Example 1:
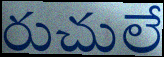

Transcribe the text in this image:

రుచులే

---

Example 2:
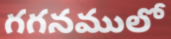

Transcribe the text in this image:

గగనములో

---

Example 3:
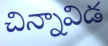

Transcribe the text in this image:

చిన్నావిడ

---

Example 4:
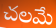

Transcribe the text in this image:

చలమే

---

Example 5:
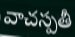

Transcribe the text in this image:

వాచస్పతీ